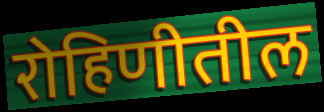
रोहिणीतील